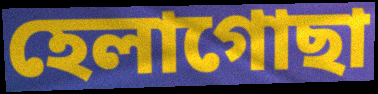
হেলাগোছা